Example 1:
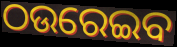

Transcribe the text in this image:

ଠଉରେଇବ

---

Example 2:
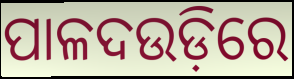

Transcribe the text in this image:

ପାଳଦଉଡ଼ିରେ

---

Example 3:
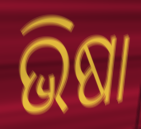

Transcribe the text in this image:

ଭିଷା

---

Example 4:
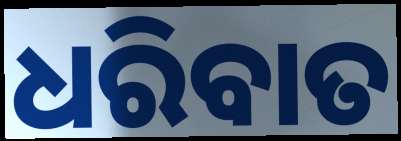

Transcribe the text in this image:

ଧରିବାତ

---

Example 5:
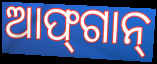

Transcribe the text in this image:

ଆଫ୍‌ଗାନ୍